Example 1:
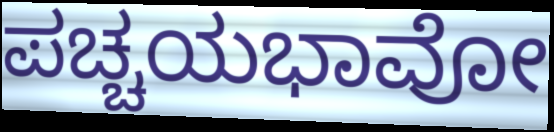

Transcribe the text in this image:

ಪಚ್ಚಯಭಾವೋ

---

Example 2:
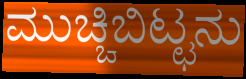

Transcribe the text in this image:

ಮುಚ್ಚಿಬಿಟ್ಟನು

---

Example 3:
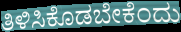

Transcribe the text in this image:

ತಿಳಿಸಿಕೊಡಬೇಕೆಂದು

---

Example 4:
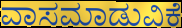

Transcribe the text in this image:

ವಾಸಮಾಡುವಿಕೆ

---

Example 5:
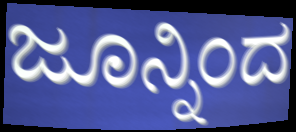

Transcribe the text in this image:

ಜೂನ್ನಿಂದ